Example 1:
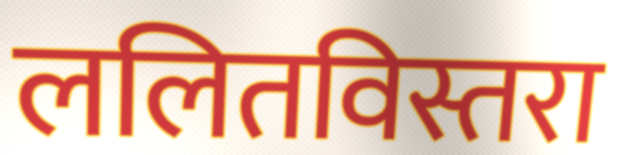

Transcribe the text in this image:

ललितविस्तरा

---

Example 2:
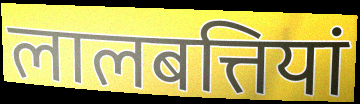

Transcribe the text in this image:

लालबत्तियां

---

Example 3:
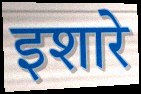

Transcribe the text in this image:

इशारे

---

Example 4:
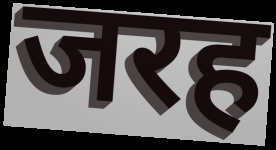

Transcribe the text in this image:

जरह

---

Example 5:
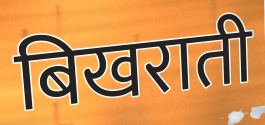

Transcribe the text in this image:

बिखराती